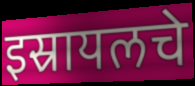
इस्रायलचे